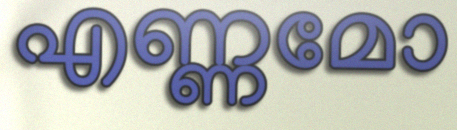
എണ്ണമോ